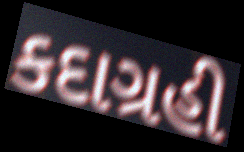
કદાગ્રહી